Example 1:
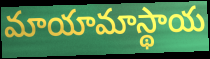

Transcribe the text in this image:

మాయామాస్థాయ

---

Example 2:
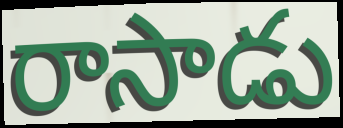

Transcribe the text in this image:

రాసాడు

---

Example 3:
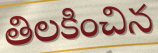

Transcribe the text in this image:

తిలకించిన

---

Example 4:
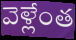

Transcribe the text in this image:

వెళ్లేంత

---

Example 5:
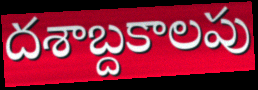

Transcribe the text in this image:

దశాబ్దకాలపు